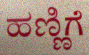
ಹಣ್ಣಿಗೆ